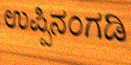
ಉಪ್ಪಿನಂಗಡಿ